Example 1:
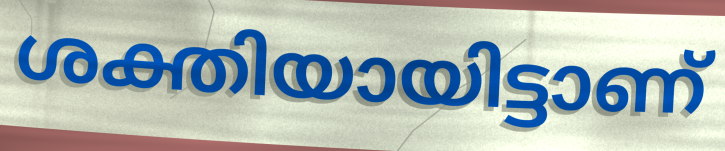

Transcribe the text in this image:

ശക്തിയായിട്ടാണ്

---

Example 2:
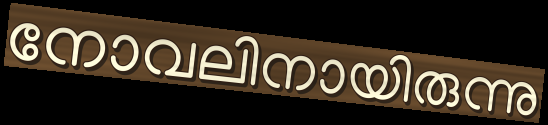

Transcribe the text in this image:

നോവലിനായിരുന്നു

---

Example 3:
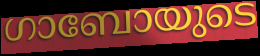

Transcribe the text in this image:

ഗാബോയുടെ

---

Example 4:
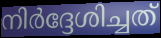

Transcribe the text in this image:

നിർദ്ദേശിച്ചത്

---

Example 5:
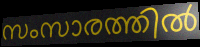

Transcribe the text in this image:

സംസാരത്തിൽ